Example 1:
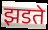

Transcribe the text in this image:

झडते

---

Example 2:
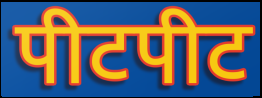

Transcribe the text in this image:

पीटपीट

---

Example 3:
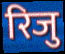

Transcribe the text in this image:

रिजु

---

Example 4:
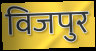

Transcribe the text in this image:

विजपुर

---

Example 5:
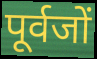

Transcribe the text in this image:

पूर्वजों